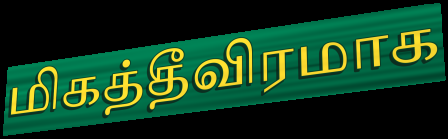
மிகத்தீவிரமாக